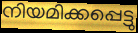
നിയമിക്കപ്പെട്ടു